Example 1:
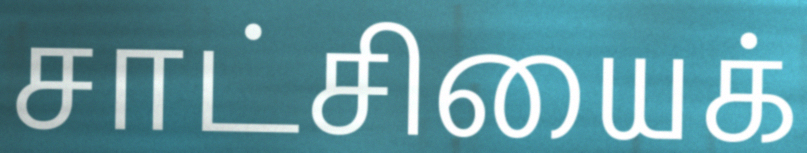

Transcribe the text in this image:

சாட்சியைக்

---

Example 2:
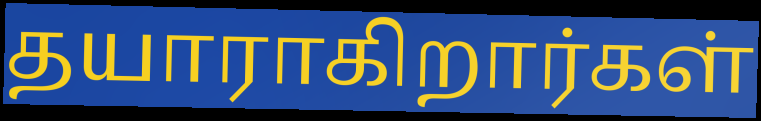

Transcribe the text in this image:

தயாராகிறார்கள்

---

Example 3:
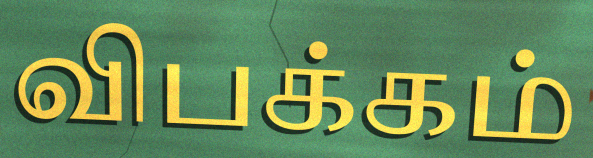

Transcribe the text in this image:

விபக்கம்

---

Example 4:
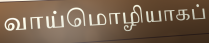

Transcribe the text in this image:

வாய்மொழியாகப்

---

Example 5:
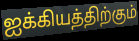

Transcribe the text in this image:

ஐக்கியத்திற்கும்